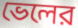
ভেলের